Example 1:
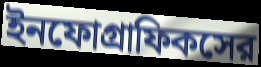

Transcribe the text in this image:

ইনফোগ্রাফিকসের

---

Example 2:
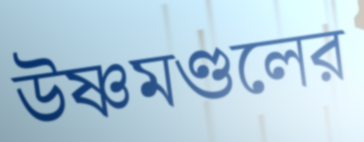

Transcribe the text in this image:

উষ্ণমণ্ডলের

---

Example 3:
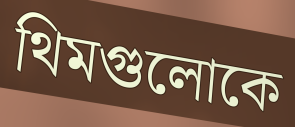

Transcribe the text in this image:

থিমগুলোকে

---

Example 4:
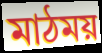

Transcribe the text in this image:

মাঠময়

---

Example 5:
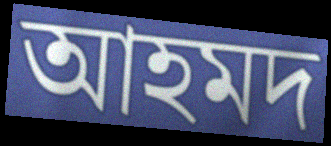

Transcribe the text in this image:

আহমদ